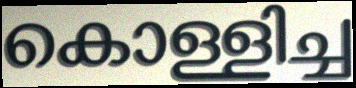
കൊള്ളിച്ച